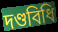
দণ্ডবিধি